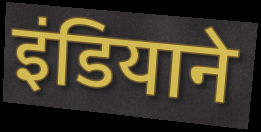
इंडियाने